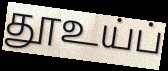
தூஉய்ப்